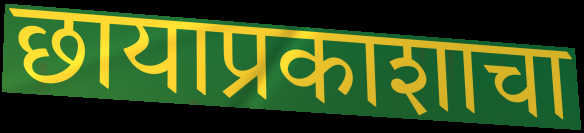
छायाप्रकाशाचा